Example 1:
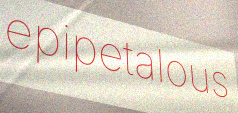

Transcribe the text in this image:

epipetalous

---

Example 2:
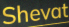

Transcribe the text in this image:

Shevat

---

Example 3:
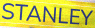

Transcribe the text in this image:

STANLEY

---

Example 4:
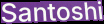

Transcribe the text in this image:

Santoshi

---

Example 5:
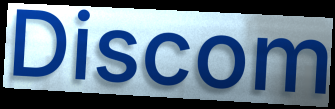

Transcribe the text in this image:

Discom